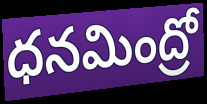
ధనమింద్రో